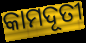
କାମଦୂତୀ